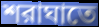
শরাঘাতে